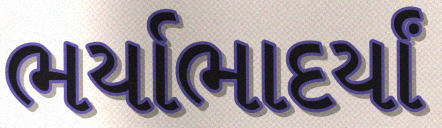
ભર્યાભાદર્યાં